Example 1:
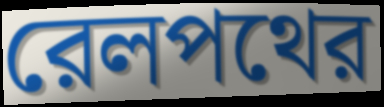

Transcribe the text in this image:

রেলপথের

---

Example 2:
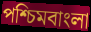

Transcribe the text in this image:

পশ্চিমবাংলা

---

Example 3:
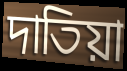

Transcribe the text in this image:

দাতিয়া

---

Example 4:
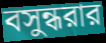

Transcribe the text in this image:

বসুন্ধরার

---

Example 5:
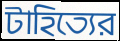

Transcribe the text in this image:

টাহিত্যের